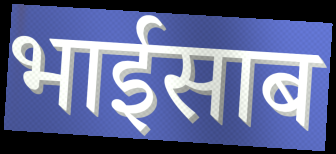
भाईसाब